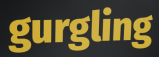
gurgling